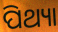
ପିଥ୍ୟା